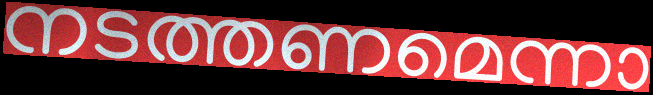
നടത്തണമെന്നാ